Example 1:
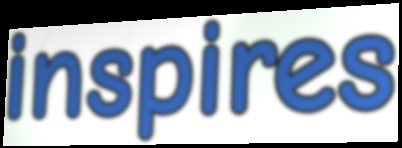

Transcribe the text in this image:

inspires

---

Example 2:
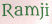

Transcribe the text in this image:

Ramji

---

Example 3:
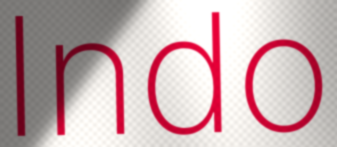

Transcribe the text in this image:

Indo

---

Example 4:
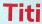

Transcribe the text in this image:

Titi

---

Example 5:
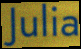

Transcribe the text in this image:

Julia